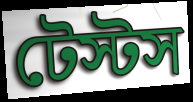
টেস্টস